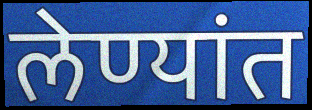
लेण्यांत